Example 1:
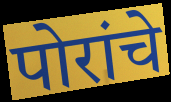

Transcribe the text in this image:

पोरांचे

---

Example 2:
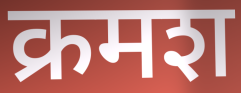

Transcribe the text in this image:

क्रमश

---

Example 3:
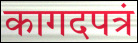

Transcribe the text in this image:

कागदपत्रं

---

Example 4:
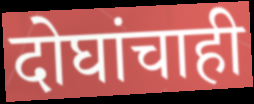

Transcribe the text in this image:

दोघांचाही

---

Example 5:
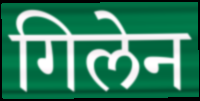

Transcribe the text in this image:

गिलेन